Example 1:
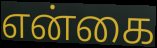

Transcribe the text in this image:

என்கை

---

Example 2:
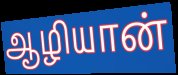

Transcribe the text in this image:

ஆழியான்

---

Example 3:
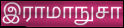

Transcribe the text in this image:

இராமாநுசா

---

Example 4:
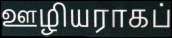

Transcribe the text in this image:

ஊழியராகப்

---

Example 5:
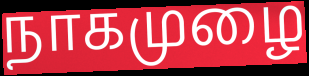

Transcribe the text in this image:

நாகமுழை